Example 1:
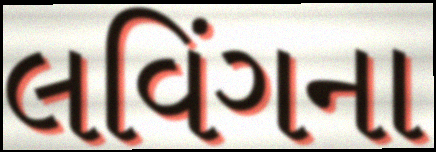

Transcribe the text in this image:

લવિંગના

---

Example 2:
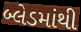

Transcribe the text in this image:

બ્લેડમાંથી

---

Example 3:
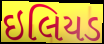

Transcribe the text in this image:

ઇલિયડ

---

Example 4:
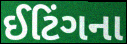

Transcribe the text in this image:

ઈટિંગના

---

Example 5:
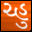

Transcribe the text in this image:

ચ્હુ